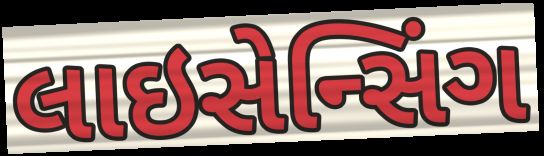
લાઇસેન્સિંગ